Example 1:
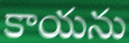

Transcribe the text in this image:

కాయను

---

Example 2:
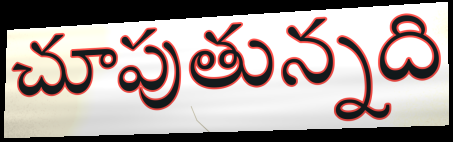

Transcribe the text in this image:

చూపుతున్నది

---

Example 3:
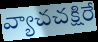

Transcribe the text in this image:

వ్యాచచక్షిరే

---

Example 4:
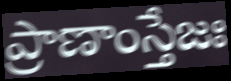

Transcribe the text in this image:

ప్రాణాంస్తేజః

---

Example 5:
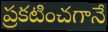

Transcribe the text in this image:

ప్రకటించగానే